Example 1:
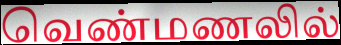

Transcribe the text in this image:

வெண்மணலில்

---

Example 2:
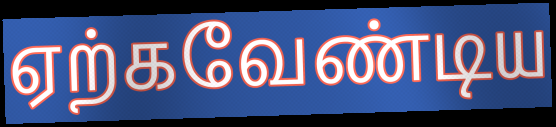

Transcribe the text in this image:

ஏற்கவேண்டிய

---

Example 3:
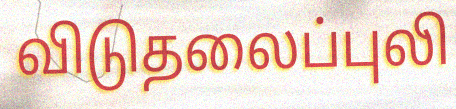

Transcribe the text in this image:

விடுதலைப்புலி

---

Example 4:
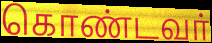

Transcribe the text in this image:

கொண்டவர்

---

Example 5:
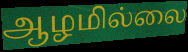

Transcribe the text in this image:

ஆழமில்லை